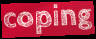
coping